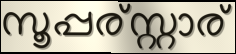
സൂപ്പര്സ്റ്റാര്